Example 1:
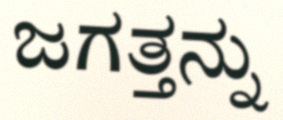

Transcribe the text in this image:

ಜಗತ್ತನ್ನು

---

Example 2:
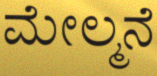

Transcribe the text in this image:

ಮೇಲ್ಮನೆ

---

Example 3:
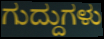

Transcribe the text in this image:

ಗುದ್ದುಗಳು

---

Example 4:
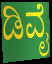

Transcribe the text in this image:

ಡಿವೈ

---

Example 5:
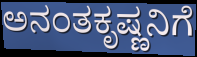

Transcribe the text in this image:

ಅನಂತಕೃಷ್ಣನಿಗೆ